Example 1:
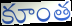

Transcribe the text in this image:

కూంత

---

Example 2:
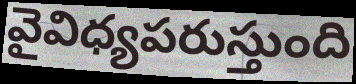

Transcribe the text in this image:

వైవిధ్యపరుస్తుంది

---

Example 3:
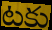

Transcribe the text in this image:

టకు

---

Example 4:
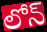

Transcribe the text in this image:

లోన్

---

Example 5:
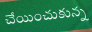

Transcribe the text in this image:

చేయించుకున్న